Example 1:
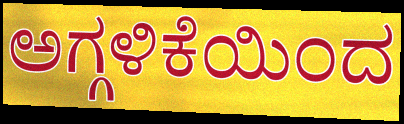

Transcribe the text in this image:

ಅಗ್ಗಳಿಕೆಯಿಂದ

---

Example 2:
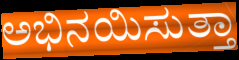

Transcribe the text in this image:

ಅಭಿನಯಿಸುತ್ತಾ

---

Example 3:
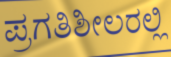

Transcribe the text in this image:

ಪ್ರಗತಿಶೀಲರಲ್ಲಿ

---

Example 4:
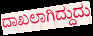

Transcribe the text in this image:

ದಾಖಲಾಗಿದ್ದುದು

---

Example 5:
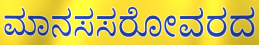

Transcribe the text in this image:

ಮಾನಸಸರೋವರದ